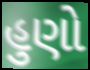
હુણો